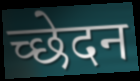
च्छेदन